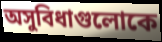
অসুবিধাগুলোকে